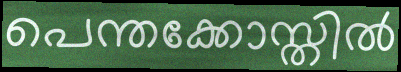
പെന്തക്കോസ്തിൽ